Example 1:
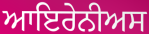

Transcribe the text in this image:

ਆਇਰੇਨੀਅਸ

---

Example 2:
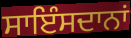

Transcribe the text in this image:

ਸਾਇੰਸਦਾਨਾਂ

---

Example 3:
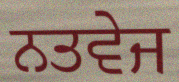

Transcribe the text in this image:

ਨਤਵੇਜ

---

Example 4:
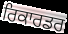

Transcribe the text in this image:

ਰਿਕਾਰਡਰ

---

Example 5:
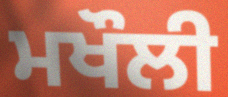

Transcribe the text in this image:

ਮਖੌਲੀ